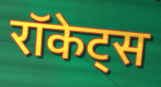
रॉकेट्स